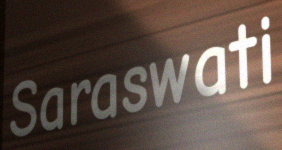
Saraswati